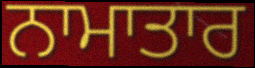
ਨਾਮਾਤਾਰ